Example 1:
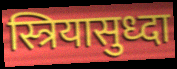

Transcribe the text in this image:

स्त्रियासुध्दा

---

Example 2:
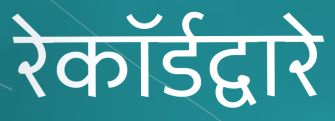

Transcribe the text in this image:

रेकॉर्डद्वारे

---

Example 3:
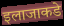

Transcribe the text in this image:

इलाजाकडे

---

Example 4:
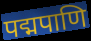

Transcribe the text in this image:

पद्मपाणि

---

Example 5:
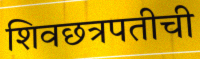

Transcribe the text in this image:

शिवछत्रपतीची